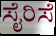
ಸೈರಿಸೆ